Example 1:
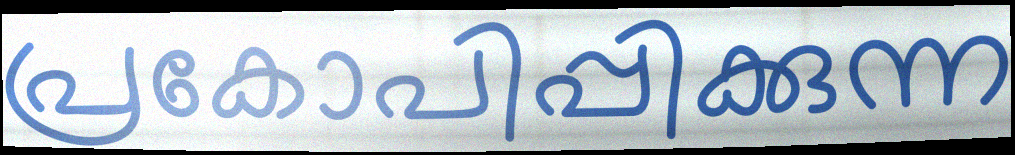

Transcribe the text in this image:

പ്രകോപിപ്പിക്കുന്ന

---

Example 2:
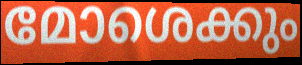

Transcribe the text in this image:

മോശെക്കും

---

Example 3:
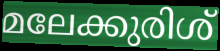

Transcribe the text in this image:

മലേക്കുരിശ്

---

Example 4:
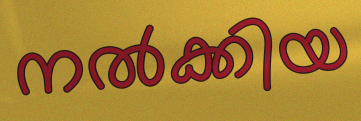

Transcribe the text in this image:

നൽക്കിയ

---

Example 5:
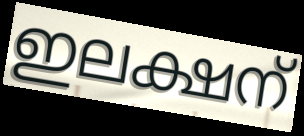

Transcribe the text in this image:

ഇലക്ഷന്